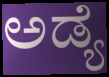
ಅಡ್ಯೆ